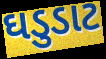
ઘડુડાટ